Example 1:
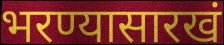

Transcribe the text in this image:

भरण्यासारखं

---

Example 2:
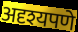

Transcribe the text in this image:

अदृश्यपणे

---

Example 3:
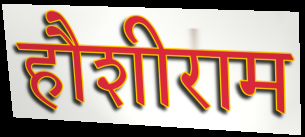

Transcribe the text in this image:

हौशीराम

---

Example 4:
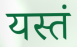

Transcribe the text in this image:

यस्तं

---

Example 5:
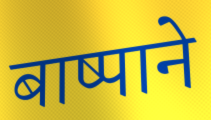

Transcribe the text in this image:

बाष्पाने